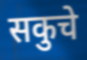
सकुचे